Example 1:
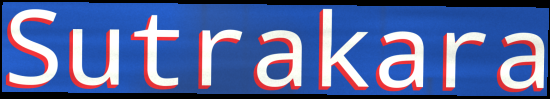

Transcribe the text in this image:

Sutrakara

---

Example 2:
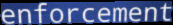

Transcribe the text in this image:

enforcement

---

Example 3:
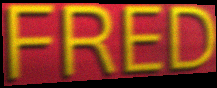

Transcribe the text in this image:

FRED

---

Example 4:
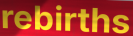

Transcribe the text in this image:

rebirths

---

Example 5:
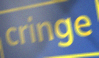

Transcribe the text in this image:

cringe